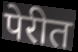
पेरीत